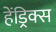
हेंड्रिक्स